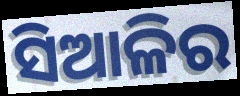
ସିଆଳିର